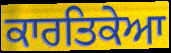
ਕਾਰਤਿਕੇਆ